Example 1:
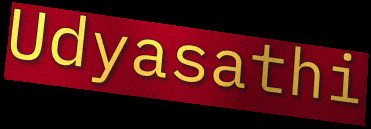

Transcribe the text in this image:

Udyasathi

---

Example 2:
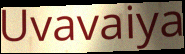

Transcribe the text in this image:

Uvavaiya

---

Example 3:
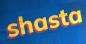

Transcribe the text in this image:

shasta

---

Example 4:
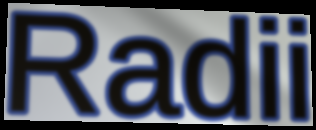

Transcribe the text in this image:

Radii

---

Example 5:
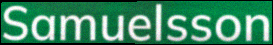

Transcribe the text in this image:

Samuelsson